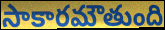
సాకారమౌతుంది